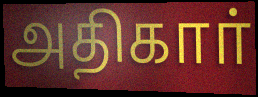
அதிகார்